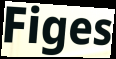
Figes